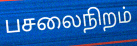
பசலைநிறம்